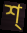
শ্